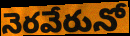
నెరవేరునో